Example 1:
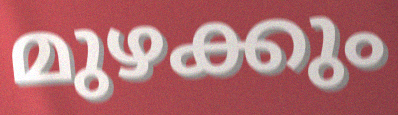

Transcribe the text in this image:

മുഴക്കും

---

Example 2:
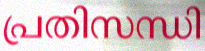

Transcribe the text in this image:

പ്രതിസന്ധി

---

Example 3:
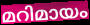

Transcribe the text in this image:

മറിമായം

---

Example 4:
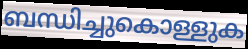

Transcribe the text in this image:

ബന്ധിച്ചുകൊള്ളുക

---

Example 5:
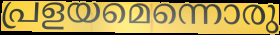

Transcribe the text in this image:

പ്രളയമെന്നൊരു